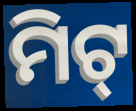
ମିଟ୍